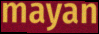
mayan